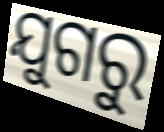
ଯୁଗରୁ